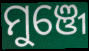
ମୁଞ୍ଜେ